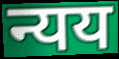
न्यय